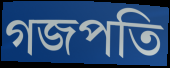
গজপতি